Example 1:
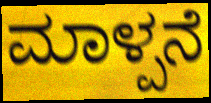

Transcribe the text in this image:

ಮಾಳ್ಪನೆ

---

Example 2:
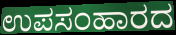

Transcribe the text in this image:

ಉಪಸಂಹಾರದ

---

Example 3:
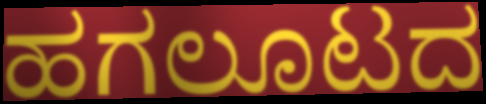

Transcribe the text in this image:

ಹಗಲೂಟದ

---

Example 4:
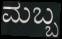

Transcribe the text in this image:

ಮಬ್ಬ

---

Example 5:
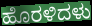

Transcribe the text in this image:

ಹೊರಳಿದಳು